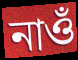
নাওঁ